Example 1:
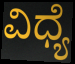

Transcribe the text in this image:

ವಿಧ್ಯೆ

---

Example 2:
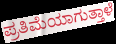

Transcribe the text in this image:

ಪ್ರತಿಮೆಯಾಗುತ್ತಾಳೆ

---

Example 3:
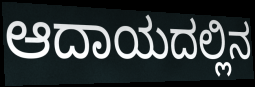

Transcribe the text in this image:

ಆದಾಯದಲ್ಲಿನ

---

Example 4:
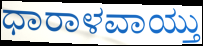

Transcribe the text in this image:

ಧಾರಾಳವಾಯ್ತು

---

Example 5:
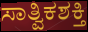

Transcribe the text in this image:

ಸಾತ್ವಿಕಶಕ್ತಿ